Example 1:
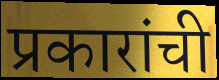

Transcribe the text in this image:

प्रकारांची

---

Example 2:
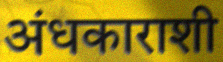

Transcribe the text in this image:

अंधकाराशी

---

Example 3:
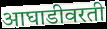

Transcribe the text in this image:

आघाडीवरती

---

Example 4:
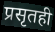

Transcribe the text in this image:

प्रसृतही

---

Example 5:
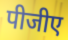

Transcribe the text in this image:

पीजीए